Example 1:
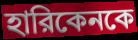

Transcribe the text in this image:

হারিকেনকে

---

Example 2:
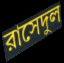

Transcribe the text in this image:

রাসেদুল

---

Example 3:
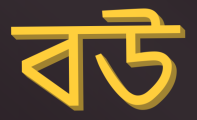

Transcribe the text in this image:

বউ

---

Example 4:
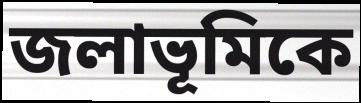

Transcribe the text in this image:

জলাভূমিকে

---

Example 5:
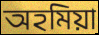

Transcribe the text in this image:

অহমিয়া